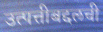
उत्पत्तीबद्दलची